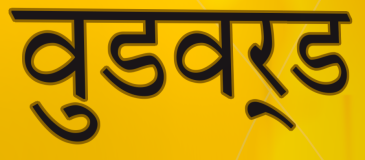
वुडवर्ड